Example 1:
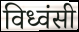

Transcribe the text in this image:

विध्वंसी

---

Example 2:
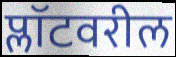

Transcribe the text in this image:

प्लॉटवरील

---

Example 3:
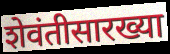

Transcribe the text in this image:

शेवंतीसारख्या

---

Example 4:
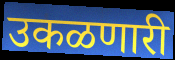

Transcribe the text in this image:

उकळणारी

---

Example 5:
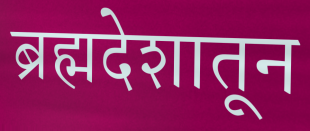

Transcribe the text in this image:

ब्रह्मदेशातून